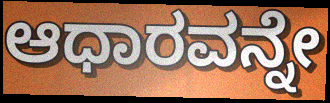
ಆಧಾರವನ್ನೇ